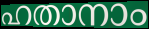
ഹതാനാം